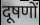
दूषणों